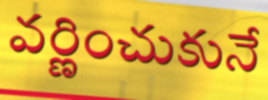
వర్ణించుకునే